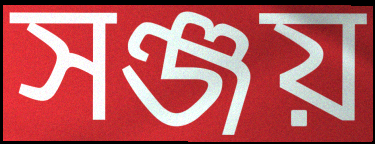
সঞ্জয়